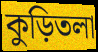
কুড়িতলা